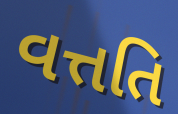
વત્તતિ